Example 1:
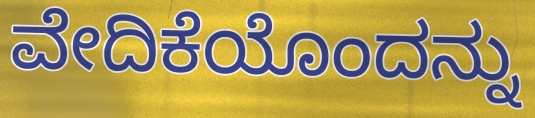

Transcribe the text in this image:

ವೇದಿಕೆಯೊಂದನ್ನು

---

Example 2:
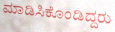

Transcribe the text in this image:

ಮಾಡಿಸಿಕೊಂಡಿದ್ದರು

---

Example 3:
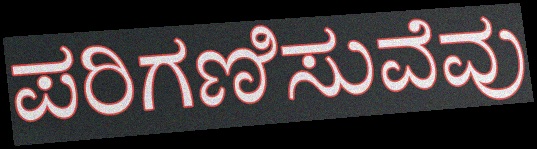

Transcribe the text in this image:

ಪರಿಗಣಿಸುವೆವು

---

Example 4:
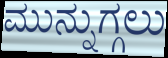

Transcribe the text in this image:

ಮುನ್ನುಗ್ಗಲು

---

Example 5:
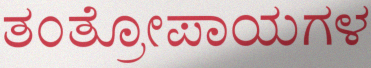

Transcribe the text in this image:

ತಂತ್ರೋಪಾಯಗಳ